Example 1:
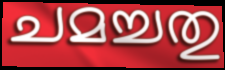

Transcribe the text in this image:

ചമച്ചതു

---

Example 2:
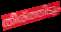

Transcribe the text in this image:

തീര്ത്തിടും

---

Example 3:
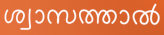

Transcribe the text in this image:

ശ്വാസത്താൽ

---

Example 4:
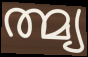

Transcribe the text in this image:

ത്മ്യ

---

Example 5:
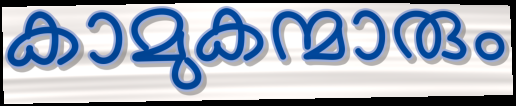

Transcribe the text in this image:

കാമുകന്മാരും